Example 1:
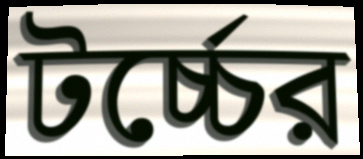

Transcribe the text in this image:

টর্চ্চের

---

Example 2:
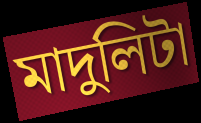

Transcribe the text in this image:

মাদুলিটা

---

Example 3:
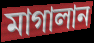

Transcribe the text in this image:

মাগালান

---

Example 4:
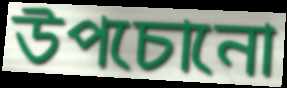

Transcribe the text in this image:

উপচোনো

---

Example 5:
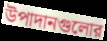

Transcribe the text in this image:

উপাদানগুলোর